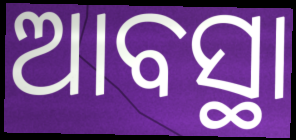
ଆବସ୍ଥା